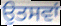
ਉਤਸਵਾਂ